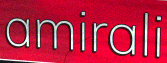
amirali